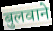
बुलवाने